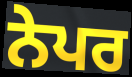
ਨੇਪਰ